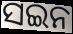
ସଇନ